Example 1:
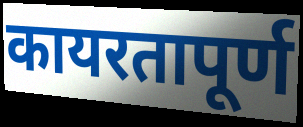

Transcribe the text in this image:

कायरतापूर्ण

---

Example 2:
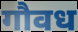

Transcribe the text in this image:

गौवध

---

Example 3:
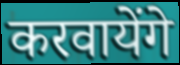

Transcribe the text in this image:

करवायेंगे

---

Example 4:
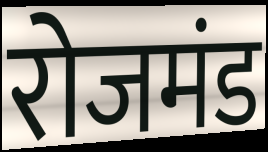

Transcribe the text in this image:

रोजमंड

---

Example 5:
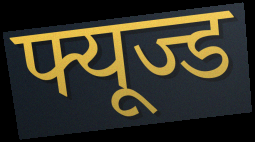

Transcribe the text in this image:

फ्यूज्ड